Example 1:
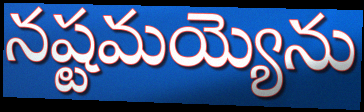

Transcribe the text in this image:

నష్టమయ్యెను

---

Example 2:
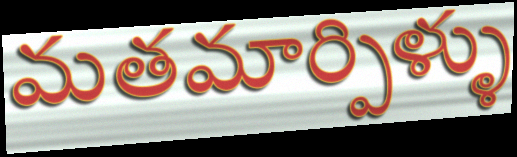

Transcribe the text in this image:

మతమార్పిళ్ళు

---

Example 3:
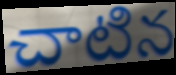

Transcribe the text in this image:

చాటిన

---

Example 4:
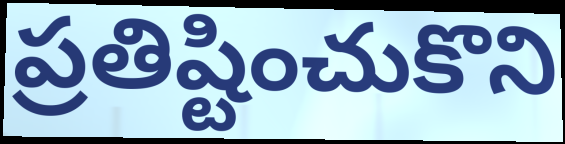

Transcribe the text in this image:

ప్రతిష్టించుకొని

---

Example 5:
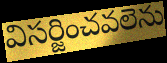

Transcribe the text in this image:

విసర్జించవలెను